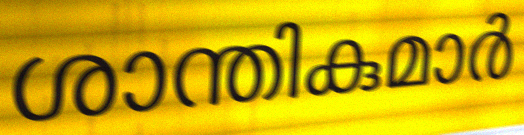
ശാന്തികുമാർ